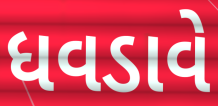
ધવડાવે